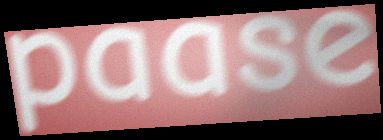
paase